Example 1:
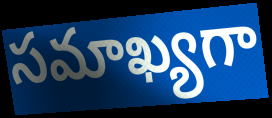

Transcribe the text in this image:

సమాఖ్యగా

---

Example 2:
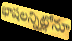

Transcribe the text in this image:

భాషలన్నిట్లోనూ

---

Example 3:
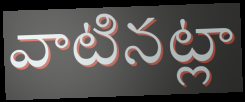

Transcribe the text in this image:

వాటినట్లా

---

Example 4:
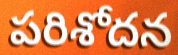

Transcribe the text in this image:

పరిశోదన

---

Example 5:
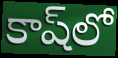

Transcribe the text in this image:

కాష్‌లో